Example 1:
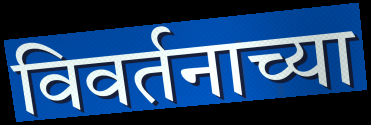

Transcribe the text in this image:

विवर्तनाच्या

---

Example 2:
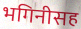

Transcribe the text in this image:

भगिनीसह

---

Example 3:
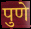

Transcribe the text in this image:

पुणे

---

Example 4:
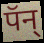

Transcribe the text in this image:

पॅन्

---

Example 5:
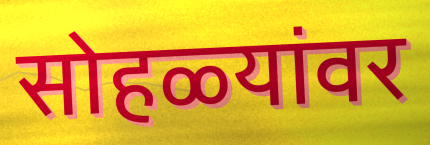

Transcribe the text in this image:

सोहळ्यांवर